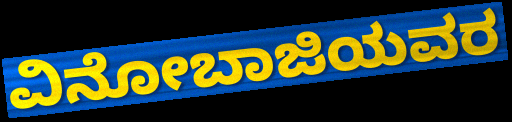
ವಿನೋಬಾಜಿಯವರ